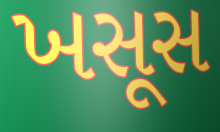
ખસૂસ